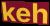
keh